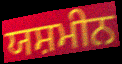
ਯਸ਼ਮੀਨ